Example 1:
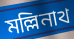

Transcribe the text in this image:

মল্লিনাথ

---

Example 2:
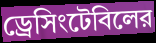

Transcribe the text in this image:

ড্রেসিংটেবিলের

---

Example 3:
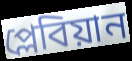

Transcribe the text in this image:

প্লেবিয়ান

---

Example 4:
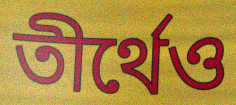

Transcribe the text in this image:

তীর্থেও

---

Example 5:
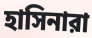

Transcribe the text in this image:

হাসিনারা